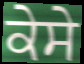
ਕੇਸੇ